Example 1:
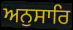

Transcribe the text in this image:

ਅਨੁਸਾਰਿ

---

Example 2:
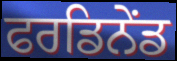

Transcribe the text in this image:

ਫਰਡਿਨੇਂਡ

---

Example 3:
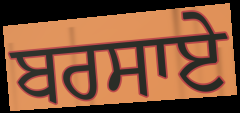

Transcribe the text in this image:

ਬਰਸਾਏ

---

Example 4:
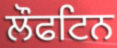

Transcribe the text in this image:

ਲੌਫਟਿਨ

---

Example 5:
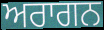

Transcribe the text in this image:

ਅਰਾਗਨ